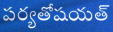
పర్యతోషయత్